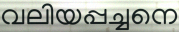
വലിയപ്പച്ചനെ